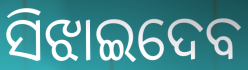
ସିଝାଇଦେବ